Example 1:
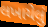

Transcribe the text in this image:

લખાયેલું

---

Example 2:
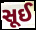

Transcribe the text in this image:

સૂઈ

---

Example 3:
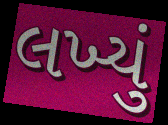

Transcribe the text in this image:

લખ્યું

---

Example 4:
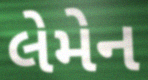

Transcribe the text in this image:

લેમેન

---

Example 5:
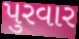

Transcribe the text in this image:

પુરવાર